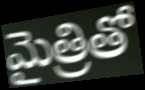
మైత్రితో